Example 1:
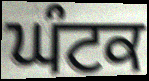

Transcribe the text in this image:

ਘੰਟਕ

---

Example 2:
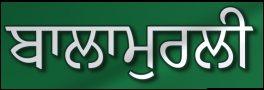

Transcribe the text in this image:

ਬਾਲਾਮੁਰਲੀ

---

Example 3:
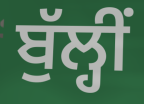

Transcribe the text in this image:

ਬੁੱਲ੍ਹੀਂ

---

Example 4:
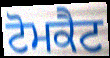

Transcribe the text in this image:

ਟੋਮਕੈਟ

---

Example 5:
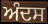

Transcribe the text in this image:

ਅੰਦਸ